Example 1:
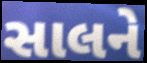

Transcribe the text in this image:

સાલને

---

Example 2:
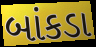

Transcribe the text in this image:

બાંકડા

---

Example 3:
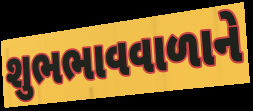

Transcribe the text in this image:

શુભભાવવાળાને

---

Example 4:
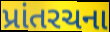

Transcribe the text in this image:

પ્રાંતરચના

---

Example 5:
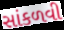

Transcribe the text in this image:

સાંકળવી